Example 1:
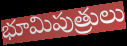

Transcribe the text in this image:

భూమిపుత్రులు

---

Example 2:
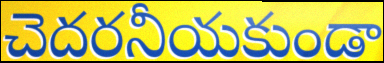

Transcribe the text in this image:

చెదరనీయకుండా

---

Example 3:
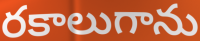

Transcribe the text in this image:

రకాలుగాను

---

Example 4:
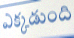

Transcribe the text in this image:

ఎక్కడుంది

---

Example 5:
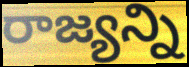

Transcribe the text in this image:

రాజ్యన్ని